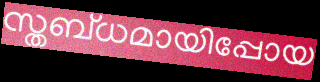
സ്തബ്ധമായിപ്പോയ